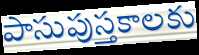
పాసుపుస్తకాలకు